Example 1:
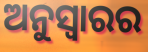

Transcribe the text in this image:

ଅନୁସ୍ଵାରର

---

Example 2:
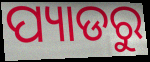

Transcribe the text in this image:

ପ୍ୟାଡରୁ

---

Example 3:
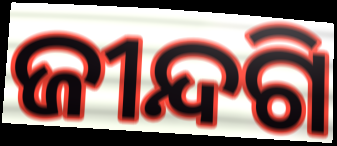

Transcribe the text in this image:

ଜୀନ୍ଦଗି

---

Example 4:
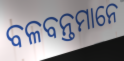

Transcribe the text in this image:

ବଳବନ୍ତମାନେ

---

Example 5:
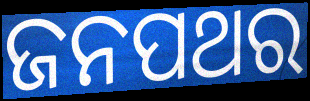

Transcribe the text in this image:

ଜନପଥର